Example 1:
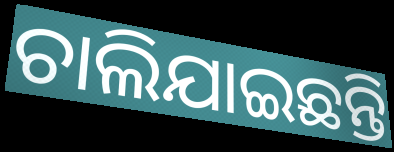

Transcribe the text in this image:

ଚାଲିଯାଇଛନ୍ତି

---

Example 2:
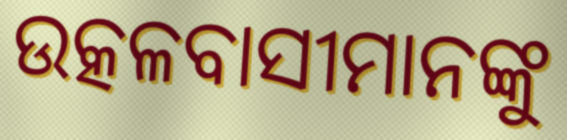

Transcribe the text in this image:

ଉତ୍କଳବାସୀମାନଙ୍କୁ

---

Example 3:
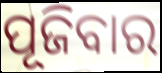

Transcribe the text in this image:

ପୂଜିବାର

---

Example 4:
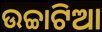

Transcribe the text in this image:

ଉଚ୍ଚାଟିଆ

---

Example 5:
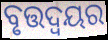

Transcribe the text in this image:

ବୃତ୍ତଦ୍ଵୟର